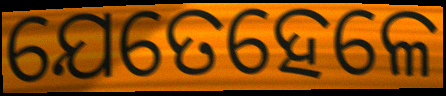
ଯେତେହେଳେ